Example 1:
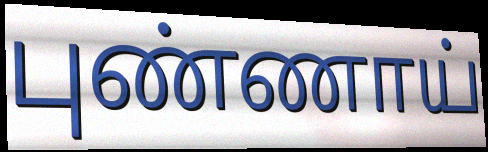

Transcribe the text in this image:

புண்ணாய்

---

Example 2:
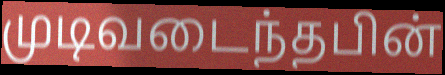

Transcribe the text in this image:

முடிவடைந்தபின்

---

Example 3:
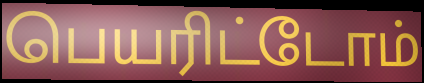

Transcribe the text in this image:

பெயரிட்டோம்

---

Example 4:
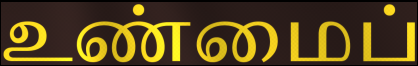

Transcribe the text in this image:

உண்மைப்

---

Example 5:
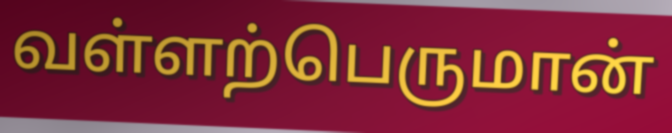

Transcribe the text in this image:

வள்ளற்பெருமான்